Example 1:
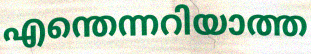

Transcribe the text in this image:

എന്തെന്നറിയാത്ത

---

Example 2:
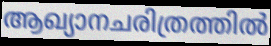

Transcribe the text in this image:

ആഖ്യാനചരിത്രത്തിൽ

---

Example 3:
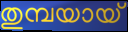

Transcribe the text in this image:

തുമ്പയായ്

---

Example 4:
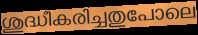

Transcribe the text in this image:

ശുദ്ധീകരിച്ചതുപോലെ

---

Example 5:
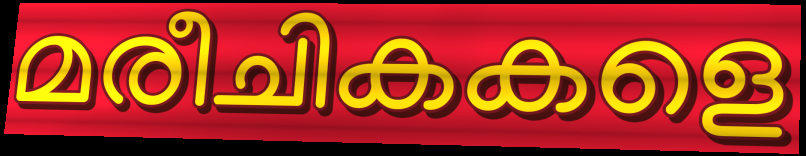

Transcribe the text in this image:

മരീചികകളെ